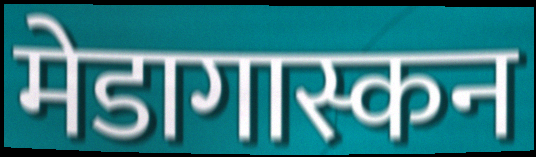
मेडागास्कन